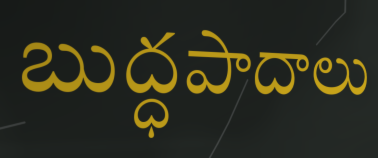
బుద్ధపాదాలు